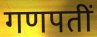
गणपतीं